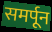
समर्पून